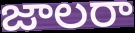
జాలరా